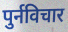
पुर्नविचार